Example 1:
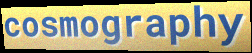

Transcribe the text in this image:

cosmography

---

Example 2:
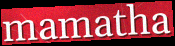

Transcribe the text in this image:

mamatha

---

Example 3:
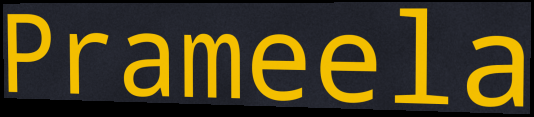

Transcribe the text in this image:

Prameela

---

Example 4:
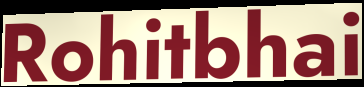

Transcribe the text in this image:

Rohitbhai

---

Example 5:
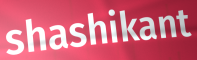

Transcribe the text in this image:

shashikant